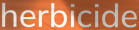
herbicide